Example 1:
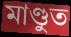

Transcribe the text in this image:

মাণ্ডুত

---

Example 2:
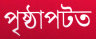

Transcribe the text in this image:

পৃষ্ঠাপটত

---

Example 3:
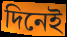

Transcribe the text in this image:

দিনেই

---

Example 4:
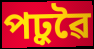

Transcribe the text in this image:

পঢ়ুৱৈ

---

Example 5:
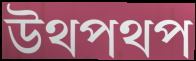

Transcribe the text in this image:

উথপথপ